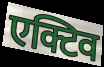
एक्टिव